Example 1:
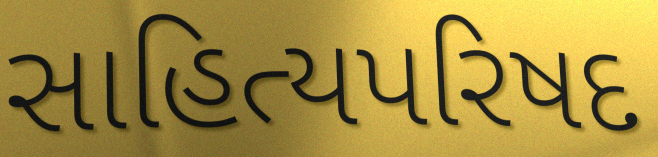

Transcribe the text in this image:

સાહિત્યપરિષદ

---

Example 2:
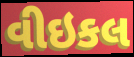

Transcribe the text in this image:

વીઇકલ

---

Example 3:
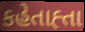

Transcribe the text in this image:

કહેતાહ્તા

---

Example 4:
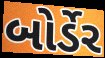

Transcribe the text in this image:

બોર્ડેર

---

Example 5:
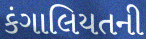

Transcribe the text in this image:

કંગાલિયતની